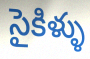
సైకిళ్ళు